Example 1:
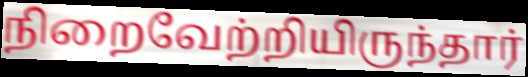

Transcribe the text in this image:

நிறைவேற்றியிருந்தார்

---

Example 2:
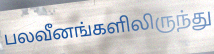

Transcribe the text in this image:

பலவீனங்களிலிருந்து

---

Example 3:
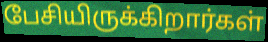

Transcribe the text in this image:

பேசியிருக்கிறார்கள்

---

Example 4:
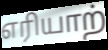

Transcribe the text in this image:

எரியாற்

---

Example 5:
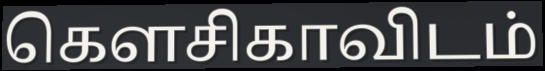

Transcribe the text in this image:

கௌசிகாவிடம்